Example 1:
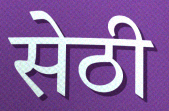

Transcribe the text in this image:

सेठी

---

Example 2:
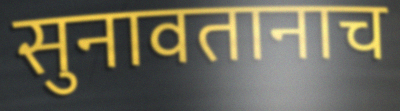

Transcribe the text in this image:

सुनावतानाच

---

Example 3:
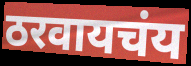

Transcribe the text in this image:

ठरवायचंय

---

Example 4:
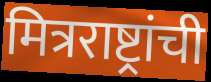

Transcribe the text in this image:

मित्रराष्ट्रांची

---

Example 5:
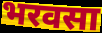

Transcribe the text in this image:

भरवसा